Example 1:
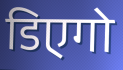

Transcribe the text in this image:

डिएगो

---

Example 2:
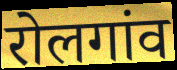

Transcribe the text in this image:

रोलगांव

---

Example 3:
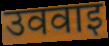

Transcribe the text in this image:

उववाइ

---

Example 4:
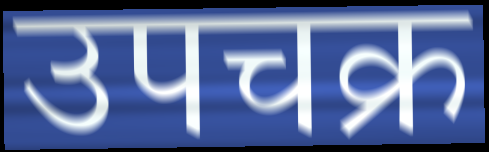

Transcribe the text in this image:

उपचक्र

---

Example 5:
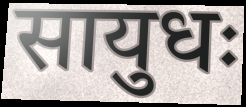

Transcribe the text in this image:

सायुधः